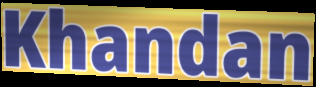
Khandan